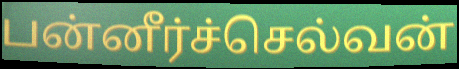
பன்னீர்ச்செல்வன்